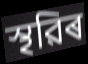
স্থৱিৰ